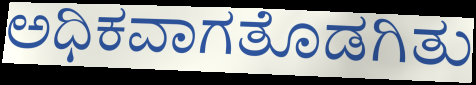
ಅಧಿಕವಾಗತೊಡಗಿತು